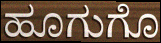
ಹೂಗುಗೊ